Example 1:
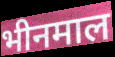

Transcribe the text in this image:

भीनमाल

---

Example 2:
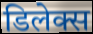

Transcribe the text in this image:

डिलेक्स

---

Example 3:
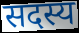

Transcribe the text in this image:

सदस्य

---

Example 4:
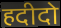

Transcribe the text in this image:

हदीदो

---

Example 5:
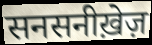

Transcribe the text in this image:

सनसनीख़ेज़